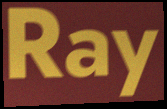
Ray